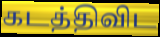
கடத்திவிட